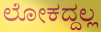
ಲೋಕದ್ದಲ್ಲ